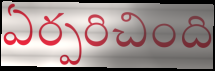
ఏర్పరిచింది